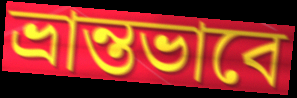
ভ্রান্তভাবে